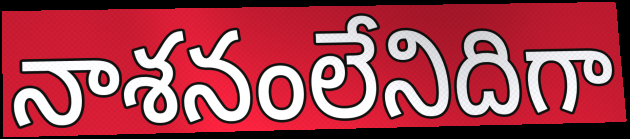
నాశనంలేనిదిగా